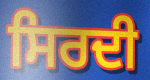
ਸਿਰਦੀ